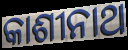
କାଶୀନାଥ